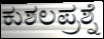
ಕುಶಲಪ್ರಶ್ನೆ